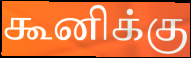
கூனிக்கு